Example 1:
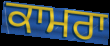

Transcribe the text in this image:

ਕਾਮਰਾ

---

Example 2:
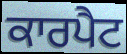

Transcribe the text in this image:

ਕਾਰਪੈਟ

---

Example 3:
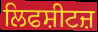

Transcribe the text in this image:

ਲਿਫਸ਼ੀਟਜ਼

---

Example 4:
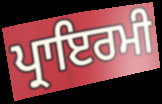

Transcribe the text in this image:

ਪ੍ਰਾਇਰਮੀ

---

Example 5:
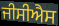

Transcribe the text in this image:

ਜੀਸੀਐਸ